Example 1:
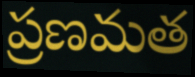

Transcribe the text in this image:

ప్రణమత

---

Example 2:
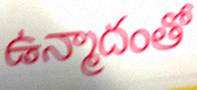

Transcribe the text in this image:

ఉన్మాదంతో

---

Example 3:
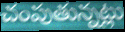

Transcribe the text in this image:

చంపుతున్నట్లు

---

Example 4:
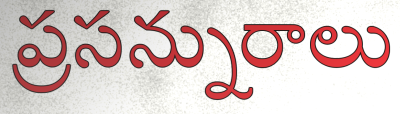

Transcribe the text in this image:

ప్రసన్నురాలు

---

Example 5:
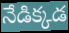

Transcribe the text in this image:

నేడిక్కడ